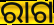
ରାଗ